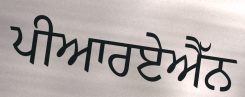
ਪੀਆਰਏਐੱਨ